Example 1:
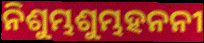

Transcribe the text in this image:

ନିଶୁମ୍ଭଶୁମ୍ଭହନନୀ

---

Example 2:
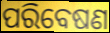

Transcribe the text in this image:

ପରିବେଷଣ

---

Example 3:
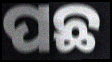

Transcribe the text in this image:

ପଛ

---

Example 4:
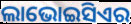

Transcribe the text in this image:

ଲାଭୋଇସିଏର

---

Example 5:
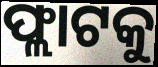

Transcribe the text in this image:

ଫ୍ଲାଟକୁ